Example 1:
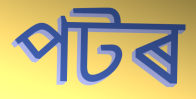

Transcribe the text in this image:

পটৰ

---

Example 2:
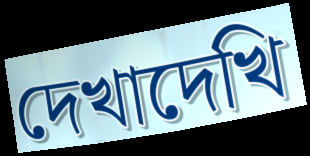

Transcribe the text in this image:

দেখাদেখি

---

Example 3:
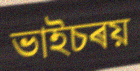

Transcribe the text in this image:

ভাইচৰয়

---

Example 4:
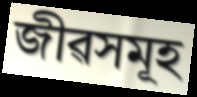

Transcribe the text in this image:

জীৱসমূহ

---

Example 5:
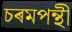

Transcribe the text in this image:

চৰমপন্থী